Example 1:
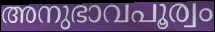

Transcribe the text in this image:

അനുഭാവപൂര്വം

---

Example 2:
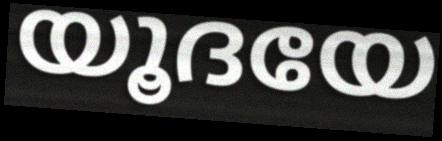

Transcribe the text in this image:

യൂദയേ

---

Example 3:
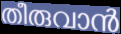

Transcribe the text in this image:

തീരുവാൻ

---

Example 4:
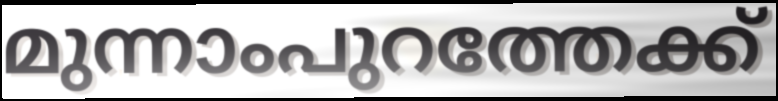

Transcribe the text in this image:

മുന്നാംപുറത്തേക്ക്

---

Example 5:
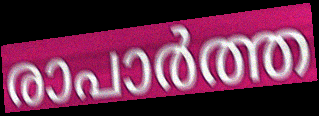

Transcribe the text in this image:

രാപാർത്ത